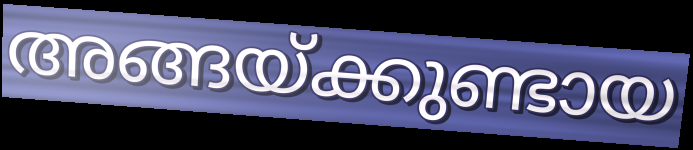
അങ്ങയ്ക്കുണ്ടായ